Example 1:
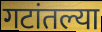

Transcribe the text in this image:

गटांतल्या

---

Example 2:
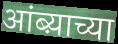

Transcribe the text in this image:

आंब्य़ाच्या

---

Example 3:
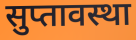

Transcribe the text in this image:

सुप्तावस्था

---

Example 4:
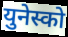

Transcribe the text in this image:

युनेस्को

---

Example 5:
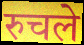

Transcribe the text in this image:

रुचले